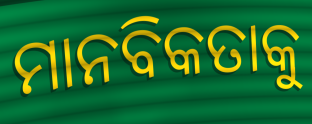
ମାନବିକତାକୁ